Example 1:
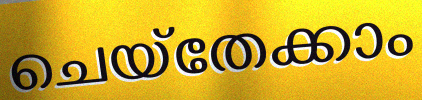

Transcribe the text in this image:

ചെയ്‌തേക്കാം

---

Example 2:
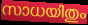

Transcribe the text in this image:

സാധയിതും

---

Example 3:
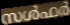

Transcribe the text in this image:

സൾഫർ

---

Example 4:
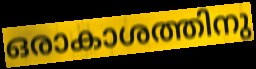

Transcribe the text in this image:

ഒരാകാശത്തിനു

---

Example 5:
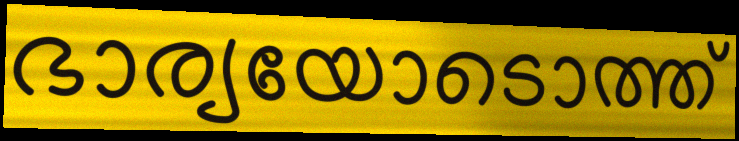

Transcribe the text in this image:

ഭാര്യയോടൊത്ത്